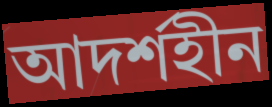
আদৰ্শহীন